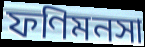
ফণিমনসা